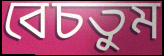
বেচতুম